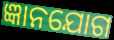
ଜ୍ଞାନଯୋଗ